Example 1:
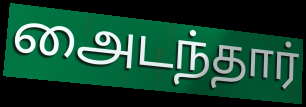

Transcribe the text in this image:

அைடந்தார்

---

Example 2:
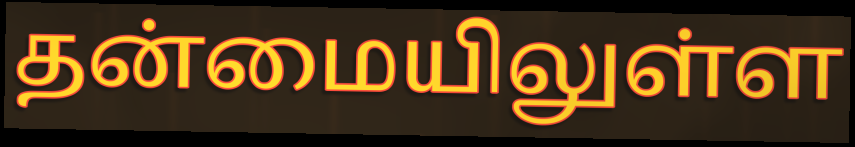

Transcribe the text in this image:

தன்மையிலுள்ள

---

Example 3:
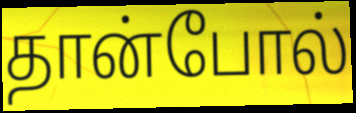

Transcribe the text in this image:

தான்போல்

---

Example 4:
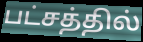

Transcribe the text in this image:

பட்சத்தில்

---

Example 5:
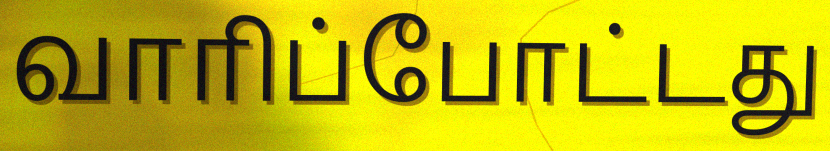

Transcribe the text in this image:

வாரிப்போட்டது